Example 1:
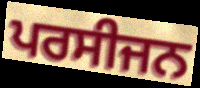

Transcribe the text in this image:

ਪਰਸੀਜਨ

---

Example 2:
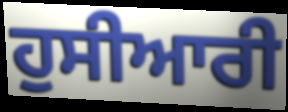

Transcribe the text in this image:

ਹੁਸੀਆਰੀ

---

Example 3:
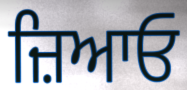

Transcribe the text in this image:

ਜ਼ਿਆਓ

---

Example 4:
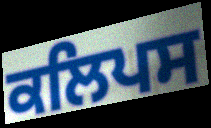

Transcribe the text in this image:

ਕਲਿਪਸ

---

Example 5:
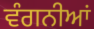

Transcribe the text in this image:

ਵੰਗਨੀਆਂ